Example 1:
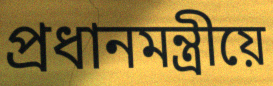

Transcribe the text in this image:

প্ৰধানমন্ত্ৰীয়ে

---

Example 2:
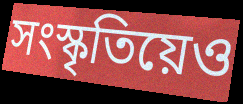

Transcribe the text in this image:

সংস্কৃতিয়েও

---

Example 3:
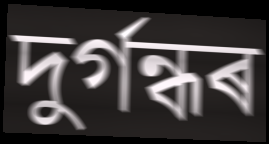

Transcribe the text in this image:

দুৰ্গন্ধৰ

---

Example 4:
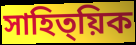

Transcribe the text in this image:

সাহিত্য়িক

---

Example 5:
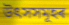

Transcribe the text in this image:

উৎসসমূহৰ